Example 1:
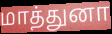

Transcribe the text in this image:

மாத்துனா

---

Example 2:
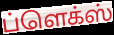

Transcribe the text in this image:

ப்ளெக்ஸ்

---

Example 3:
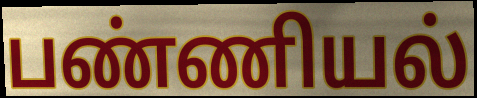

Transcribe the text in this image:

பண்ணியல்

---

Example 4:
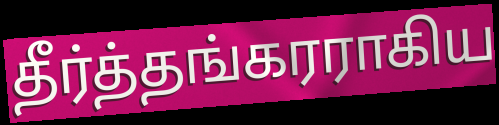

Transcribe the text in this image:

தீர்த்தங்கரராகிய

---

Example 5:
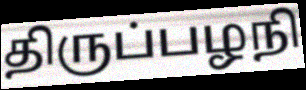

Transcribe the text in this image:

திருப்பழநி